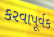
કરવાપૂર્વક